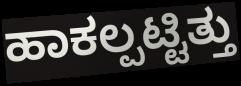
ಹಾಕಲ್ಪಟ್ಟಿತ್ತು